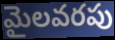
మైలవరపు